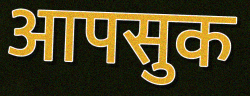
आपसुक